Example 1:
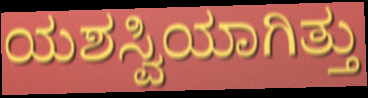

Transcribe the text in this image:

ಯಶಸ್ವಿಯಾಗಿತ್ತು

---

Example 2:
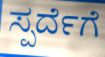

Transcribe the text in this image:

ಸ್ಪರ್ದೆಗೆ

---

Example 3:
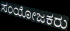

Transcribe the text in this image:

ಸಂಯೋಜಕರು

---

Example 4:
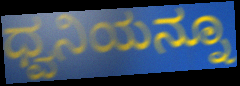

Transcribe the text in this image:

ಧ್ವನಿಯನ್ನೂ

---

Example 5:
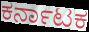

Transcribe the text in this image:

ಕರ್ನಾಟಕ